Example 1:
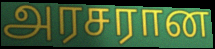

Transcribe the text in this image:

அரசரான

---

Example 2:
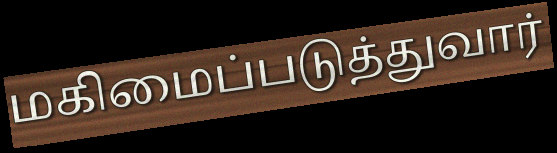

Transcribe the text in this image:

மகிமைப்படுத்துவார்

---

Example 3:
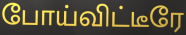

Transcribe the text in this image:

போய்விட்டீரே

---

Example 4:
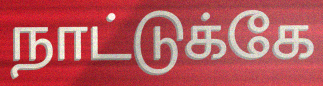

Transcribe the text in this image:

நாட்டுக்கே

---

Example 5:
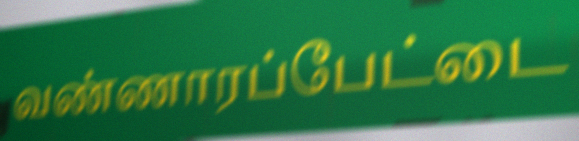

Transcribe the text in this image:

வண்ணாரப்பேட்டை